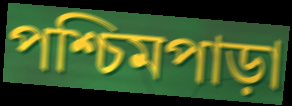
পশ্চিমপাড়া